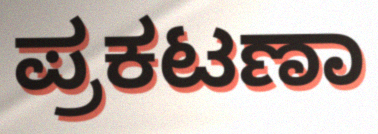
ಪ್ರಕಟಣಾ